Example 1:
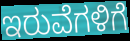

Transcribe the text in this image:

ಇರುವೆಗಳಿಗೆ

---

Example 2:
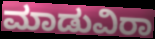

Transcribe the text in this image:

ಮಾಡುವಿರಾ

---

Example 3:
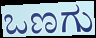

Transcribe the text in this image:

ಒಣಗು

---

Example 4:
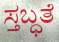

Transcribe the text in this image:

ಸ್ತಬ್ಧತೆ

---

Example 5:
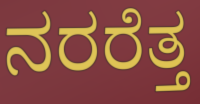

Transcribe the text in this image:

ನರರೆತ್ತ